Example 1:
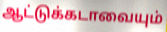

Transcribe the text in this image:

ஆட்டுக்கடாவையும்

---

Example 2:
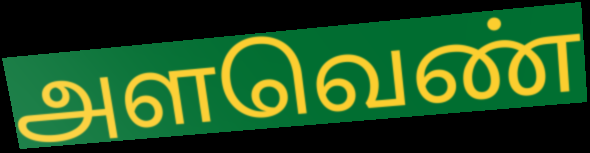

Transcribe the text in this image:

அளவெண்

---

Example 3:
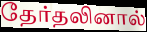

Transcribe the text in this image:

தேர்தலினால்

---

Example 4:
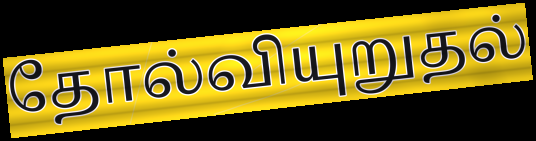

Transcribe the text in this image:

தோல்வியுறுதல்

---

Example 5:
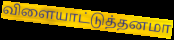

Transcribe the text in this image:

விளையாட்டுத்தனமா